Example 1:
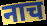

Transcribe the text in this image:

नाच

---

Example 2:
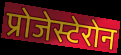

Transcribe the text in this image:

प्रोजेस्टेरोन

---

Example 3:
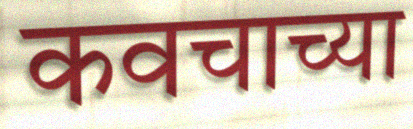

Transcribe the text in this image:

कवचाच्या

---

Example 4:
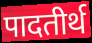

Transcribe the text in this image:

पादतीर्थ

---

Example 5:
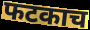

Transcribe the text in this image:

फटकाच